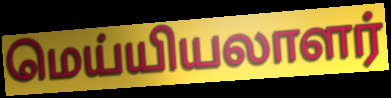
மெய்யியலாளர்